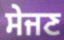
ਸੇਜਣ